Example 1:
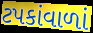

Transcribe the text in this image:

ટપકાંવાળાં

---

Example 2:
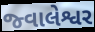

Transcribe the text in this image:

જ્વાલેશ્વર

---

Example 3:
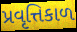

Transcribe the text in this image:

પ્રવૃત્તિકાળ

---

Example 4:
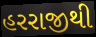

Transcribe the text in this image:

હરરાજીથી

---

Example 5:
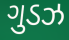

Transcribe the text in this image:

ગુડઝ